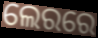
ଲେରରେ